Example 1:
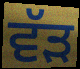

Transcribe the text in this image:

ਵੱੜ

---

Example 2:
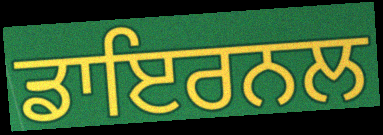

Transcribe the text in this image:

ਡਾਇਰਨਲ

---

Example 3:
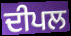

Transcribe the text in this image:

ਦੀਪਲ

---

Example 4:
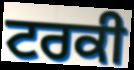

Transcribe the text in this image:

ਟਰਕੀ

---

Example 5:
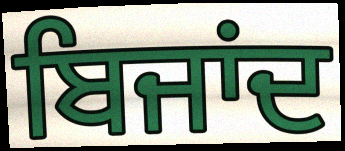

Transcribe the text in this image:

ਬਿਜਾਂਦ